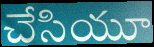
చేసియూ